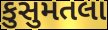
કુસુમતલા